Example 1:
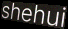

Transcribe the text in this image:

shehui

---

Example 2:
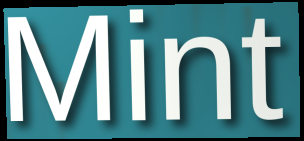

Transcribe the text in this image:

Mint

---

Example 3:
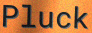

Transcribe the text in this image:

Pluck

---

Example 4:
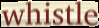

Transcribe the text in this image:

whistle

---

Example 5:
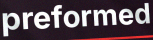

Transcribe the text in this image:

preformed